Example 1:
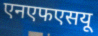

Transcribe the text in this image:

एनएफएसयू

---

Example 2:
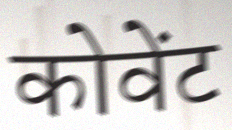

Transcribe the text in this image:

कोवेंट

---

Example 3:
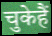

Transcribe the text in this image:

चुकेहैं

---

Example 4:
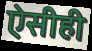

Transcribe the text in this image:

ऐसीही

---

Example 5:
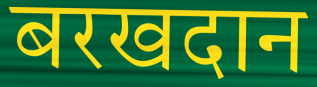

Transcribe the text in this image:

बरखदान